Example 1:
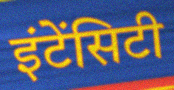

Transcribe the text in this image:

इंटेंसिटी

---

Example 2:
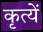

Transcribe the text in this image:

कृत्यें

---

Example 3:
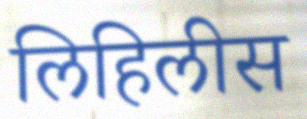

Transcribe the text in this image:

लिहिलीस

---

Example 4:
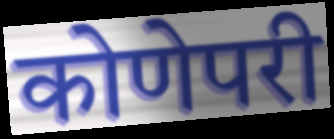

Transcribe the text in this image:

कोणेपरी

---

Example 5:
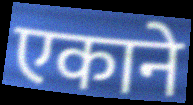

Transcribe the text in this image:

एकाने